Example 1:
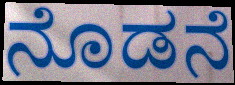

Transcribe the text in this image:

ನೊಡನೆ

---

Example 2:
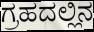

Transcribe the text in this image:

ಗ್ರಹದಲ್ಲಿನ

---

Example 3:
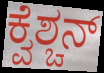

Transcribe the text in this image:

ಕ್ವೆಶ್ಚನ್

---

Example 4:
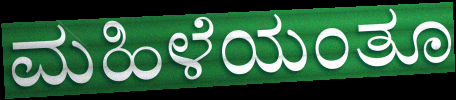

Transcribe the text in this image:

ಮಹಿಳೆಯಂತೂ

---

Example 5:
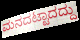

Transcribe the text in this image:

ಮನದಟ್ಟಾದದ್ದು